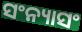
ସଂନ୍ୟାସଂ